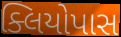
ક્લિયોપાસ